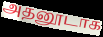
அதனூடாக